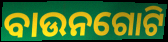
ବାଉନଗୋଟି